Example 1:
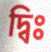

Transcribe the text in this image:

দ্বিঃ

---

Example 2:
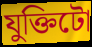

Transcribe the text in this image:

যুক্তিটো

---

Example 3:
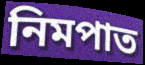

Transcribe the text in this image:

নিমপাত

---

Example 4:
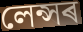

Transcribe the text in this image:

লেন্সৰ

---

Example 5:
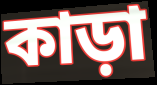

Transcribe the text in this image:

কাড়া